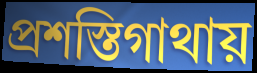
প্রশস্তিগাথায়